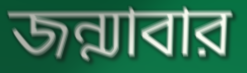
জন্মাবার